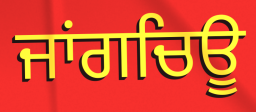
ਜਾਂਗਚਿਊ